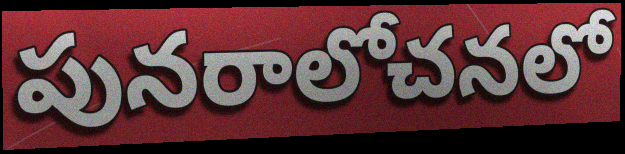
పునరాలోచనలో